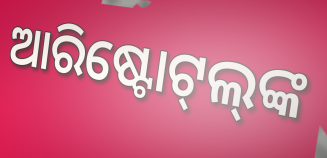
ଆରିଷ୍ଟୋଟ୍‌ଲ୍‌ଙ୍କ